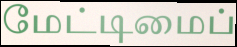
மேட்டிமைப்